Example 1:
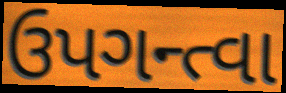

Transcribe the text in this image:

ઉપગન્ત્વા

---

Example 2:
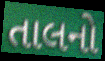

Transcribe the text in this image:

તાલનો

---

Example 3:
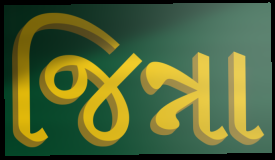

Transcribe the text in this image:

જિન્ના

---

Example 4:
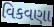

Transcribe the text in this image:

વિકવણા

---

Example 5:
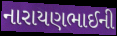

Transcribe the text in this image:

નારાયણભાઈની